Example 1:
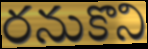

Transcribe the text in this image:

రనుకొని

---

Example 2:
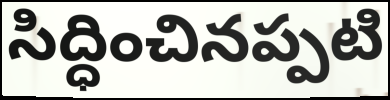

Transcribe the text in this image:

సిద్ధించినప్పటి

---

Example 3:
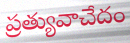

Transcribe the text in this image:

ప్రత్యువాచేదం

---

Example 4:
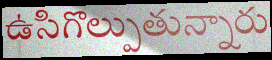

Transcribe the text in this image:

ఉసిగొల్పుతున్నారు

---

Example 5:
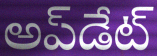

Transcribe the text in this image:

అప్‌డేట్